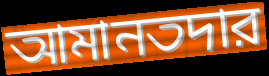
আমানতদার